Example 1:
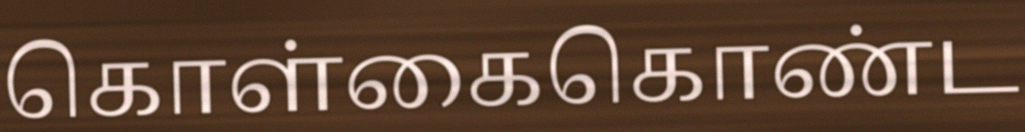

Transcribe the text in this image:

கொள்கைகொண்ட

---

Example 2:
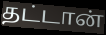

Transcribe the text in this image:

தட்டான்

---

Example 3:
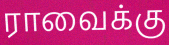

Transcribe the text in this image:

ராவைக்கு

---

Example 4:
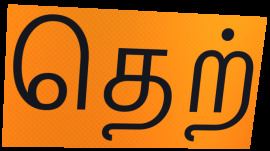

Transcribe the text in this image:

தெற்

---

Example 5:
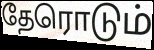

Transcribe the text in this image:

தேரொடும்